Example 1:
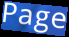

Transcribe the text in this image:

Page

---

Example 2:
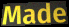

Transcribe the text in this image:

Made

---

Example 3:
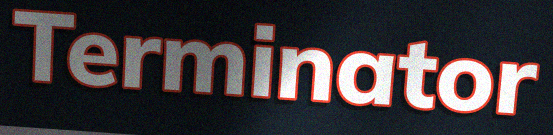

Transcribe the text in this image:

Terminator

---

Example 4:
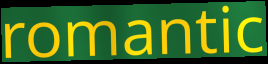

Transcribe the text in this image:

romantic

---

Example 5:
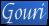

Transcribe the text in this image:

Gouri